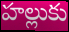
హల్లుకు